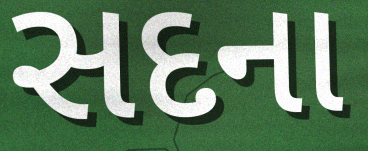
સદના